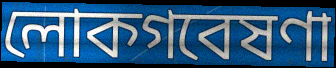
লোকগবেষণা